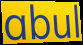
abul